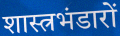
शास्त्रभंडारों